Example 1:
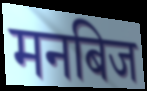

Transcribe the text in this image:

मनबिज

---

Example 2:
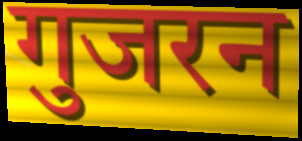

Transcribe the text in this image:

गुजरन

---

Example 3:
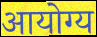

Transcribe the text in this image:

आयोग्य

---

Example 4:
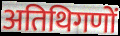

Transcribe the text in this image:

अतिथिगणों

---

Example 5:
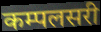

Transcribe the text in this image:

कम्पलसरी